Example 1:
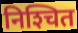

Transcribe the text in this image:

निश्‍चित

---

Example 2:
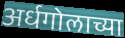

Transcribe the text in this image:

अर्धगोलाच्या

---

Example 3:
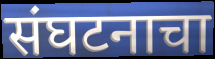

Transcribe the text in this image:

संघटनाचा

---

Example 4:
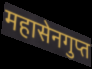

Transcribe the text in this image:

महासेनगुप्त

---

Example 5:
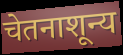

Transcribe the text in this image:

चेतनाशून्य